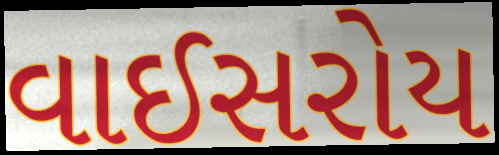
વાઈસરોય